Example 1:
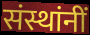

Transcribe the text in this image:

संस्थांनीं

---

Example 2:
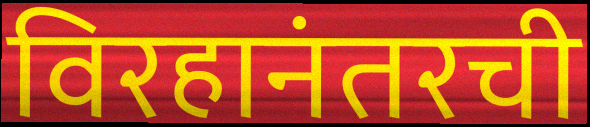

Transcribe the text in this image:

विरहानंतरची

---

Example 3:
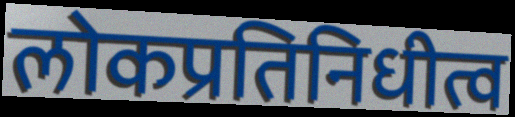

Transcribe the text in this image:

लोकप्रतिनिधीत्व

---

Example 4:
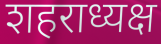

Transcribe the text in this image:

शहराध्यक्ष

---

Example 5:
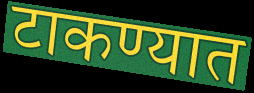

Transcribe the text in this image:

टाकण्यात